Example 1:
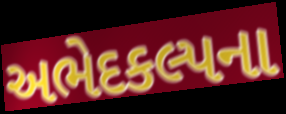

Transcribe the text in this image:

અભેદકલ્પના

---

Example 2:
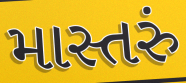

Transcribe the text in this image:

માસ્તરું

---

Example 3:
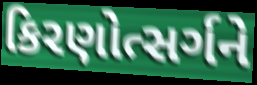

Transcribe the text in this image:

કિરણોત્સર્ગને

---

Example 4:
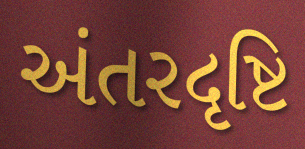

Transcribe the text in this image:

અંતરદૃષ્ટિ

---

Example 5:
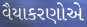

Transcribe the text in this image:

વૈયાકરણોએ